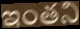
ఇంతని